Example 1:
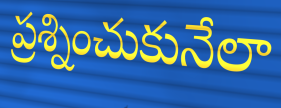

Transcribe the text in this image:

ప్రశ్నించుకునేలా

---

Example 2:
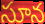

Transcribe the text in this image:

సూన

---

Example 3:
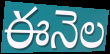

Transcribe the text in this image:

ఈనెల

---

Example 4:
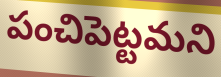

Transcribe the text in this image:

పంచిపెట్టమని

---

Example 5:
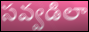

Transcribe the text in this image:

సవ్వడిలా